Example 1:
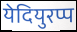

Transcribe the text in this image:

येदियुरप्प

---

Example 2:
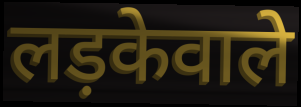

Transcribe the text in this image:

लड़केवाले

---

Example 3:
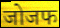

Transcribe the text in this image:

जोजफ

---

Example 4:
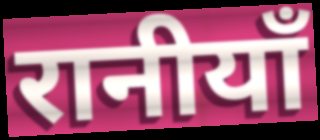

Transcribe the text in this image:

रानीयाँ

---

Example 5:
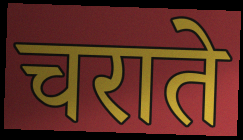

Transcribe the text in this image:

चराते